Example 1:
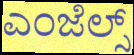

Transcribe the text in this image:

ಎಂಜೆಲ್ಸ್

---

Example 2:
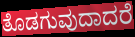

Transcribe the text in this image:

ತೊಡಗುವುದಾದರೆ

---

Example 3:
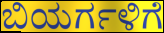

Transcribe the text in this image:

ಬಿಯರ್ಗಳಿಗೆ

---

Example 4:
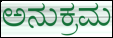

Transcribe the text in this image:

ಅನುಕ್ರಮ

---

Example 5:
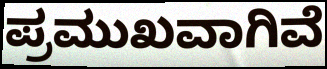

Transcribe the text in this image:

ಪ್ರಮುಖವಾಗಿವೆ